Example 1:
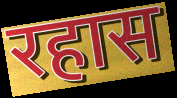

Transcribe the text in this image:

रहास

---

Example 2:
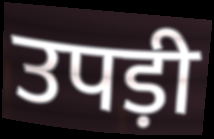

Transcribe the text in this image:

उपड़ी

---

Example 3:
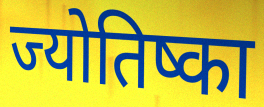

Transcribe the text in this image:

ज्योतिष्का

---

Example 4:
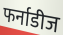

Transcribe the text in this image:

फर्नाडीज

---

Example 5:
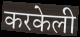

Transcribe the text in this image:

करकेली